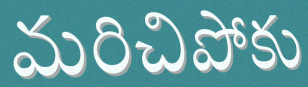
మరిచిపోకు